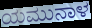
ಯಮುನಾಳ